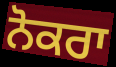
ਨੋਕਰਾ